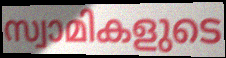
സ്വാമികളുടെ